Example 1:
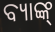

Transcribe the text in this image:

ବ୍ୟାଙ୍କ୍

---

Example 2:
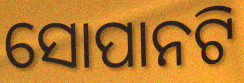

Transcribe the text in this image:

ସୋପାନଟି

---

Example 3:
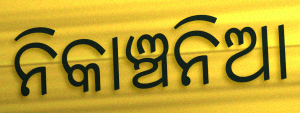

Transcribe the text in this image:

ନିକାଞ୍ଚନିଆ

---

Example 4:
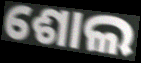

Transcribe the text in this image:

ଶୋଲ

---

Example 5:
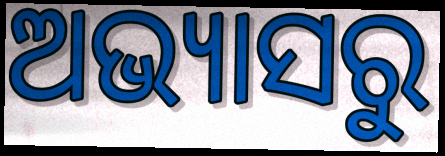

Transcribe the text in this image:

ଅଭ୍ୟାସରୁ